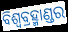
ବିଶ୍ୱବ୍ରହ୍ମାଣ୍ଡର